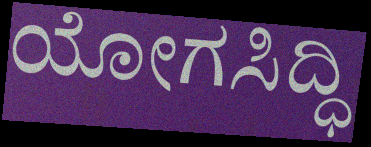
ಯೋಗಸಿದ್ಧಿ